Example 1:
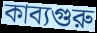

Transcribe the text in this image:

কাব্যগুরু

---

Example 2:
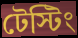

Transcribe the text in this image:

টেস্টিং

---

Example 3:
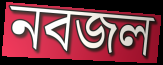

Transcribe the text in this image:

নবজল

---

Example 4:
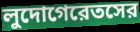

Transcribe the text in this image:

লুদোগেরেতসের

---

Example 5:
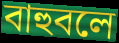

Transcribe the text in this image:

বাহুবলে